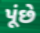
પૂંછે